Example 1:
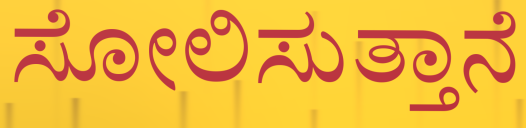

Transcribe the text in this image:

ಸೋಲಿಸುತ್ತಾನೆ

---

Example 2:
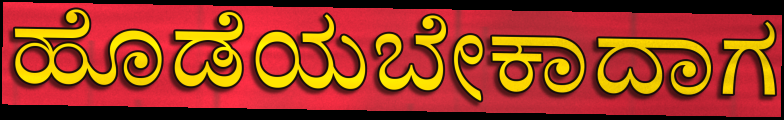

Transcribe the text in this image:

ಹೊಡೆಯಬೇಕಾದಾಗ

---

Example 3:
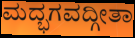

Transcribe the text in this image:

ಮದ್ಭಗವದ್ಗೀತಾ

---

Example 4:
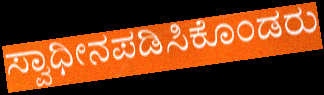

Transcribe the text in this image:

ಸ್ವಾಧೀನಪಡಿಸಿಕೊಂಡರು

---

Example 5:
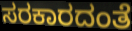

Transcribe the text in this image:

ಸರಕಾರದಂತೆ